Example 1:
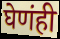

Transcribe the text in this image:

घेणंही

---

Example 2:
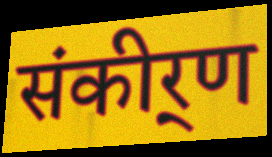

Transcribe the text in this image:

संकीर्ण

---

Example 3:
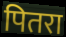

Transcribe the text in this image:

पितरा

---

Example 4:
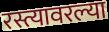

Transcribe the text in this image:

रस्त्यावरल्या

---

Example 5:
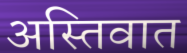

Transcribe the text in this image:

अस्तिवात